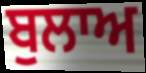
ਬੁਲਾਅ